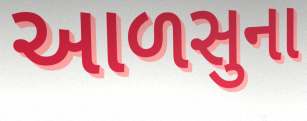
આળસુના